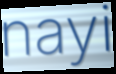
nayi